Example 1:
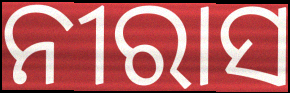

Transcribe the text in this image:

ନୀରାସ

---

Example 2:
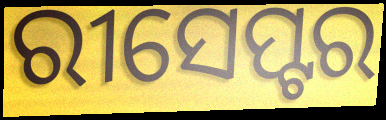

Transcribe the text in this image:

ରୀସେପ୍ଟର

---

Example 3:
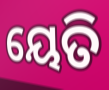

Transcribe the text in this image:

ୟେତି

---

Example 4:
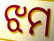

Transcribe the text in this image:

ଝମ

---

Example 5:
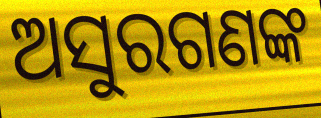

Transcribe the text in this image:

ଅସୁରଗଣଙ୍କ